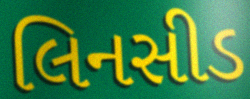
લિનસીડ